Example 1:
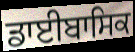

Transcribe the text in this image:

ਡਾਈਬਾਸਿਕ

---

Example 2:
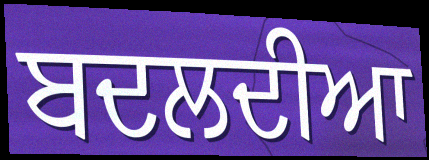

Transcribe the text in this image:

ਬਦਲਦੀਆ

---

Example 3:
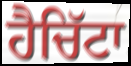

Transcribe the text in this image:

ਹੈਚਿੱਟਾ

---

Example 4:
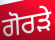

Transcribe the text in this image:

ਗੋਰੜੇ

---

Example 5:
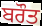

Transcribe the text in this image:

ਬਰੌਤ